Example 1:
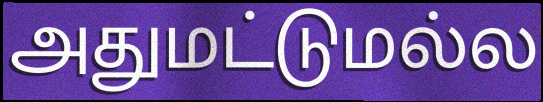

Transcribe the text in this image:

அதுமட்டுமல்ல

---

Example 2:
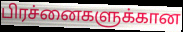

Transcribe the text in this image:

பிரச்னைகளுக்கான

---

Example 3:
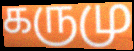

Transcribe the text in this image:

கருமு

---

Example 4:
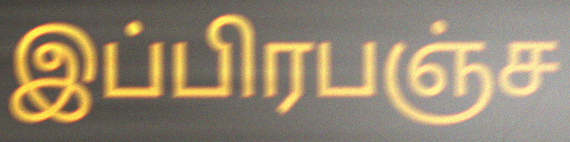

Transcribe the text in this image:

இப்பிரபஞ்ச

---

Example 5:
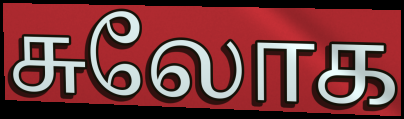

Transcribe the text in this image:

சுலோக